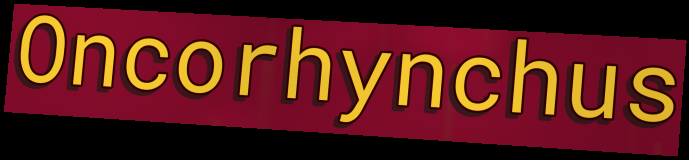
Oncorhynchus